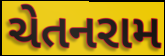
ચેતનરામ